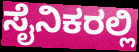
ಸೈನಿಕರಲ್ಲಿ